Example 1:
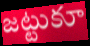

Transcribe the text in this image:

జట్టుకూ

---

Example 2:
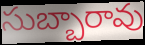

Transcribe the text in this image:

సుబ్బారావు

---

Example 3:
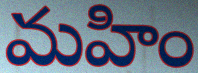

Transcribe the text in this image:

మహిం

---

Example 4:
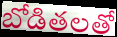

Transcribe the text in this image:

బోడితలతో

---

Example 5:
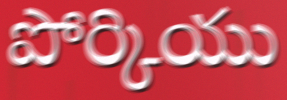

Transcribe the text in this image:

పోర్కియు